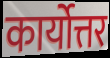
कार्योत्तर